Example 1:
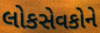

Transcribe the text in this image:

લોકસેવકોને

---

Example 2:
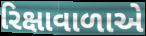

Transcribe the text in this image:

રિક્ષાવાળાએ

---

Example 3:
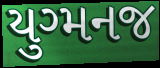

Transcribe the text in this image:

યુગ્મનજ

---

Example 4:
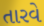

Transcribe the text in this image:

તારવે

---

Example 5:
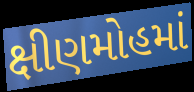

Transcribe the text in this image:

ક્ષીણમોહમાં